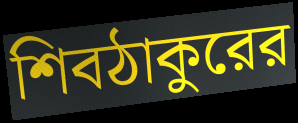
শিবঠাকুরের